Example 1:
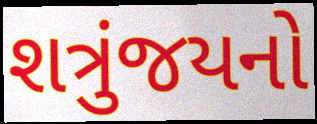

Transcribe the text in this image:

શત્રુંજયનો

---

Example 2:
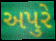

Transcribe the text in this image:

અપુરે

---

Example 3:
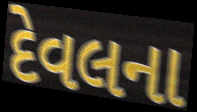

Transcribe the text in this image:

દેવલના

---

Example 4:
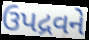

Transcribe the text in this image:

ઉપદ્રવને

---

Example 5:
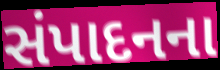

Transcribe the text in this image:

સંપાદનના